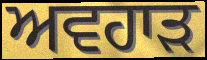
ਅਵਹਾੜ